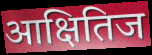
आक्षितिज